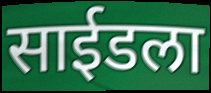
साईडला